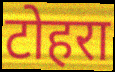
टोहरा